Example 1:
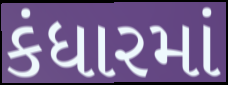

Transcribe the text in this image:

કંધારમાં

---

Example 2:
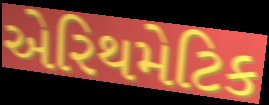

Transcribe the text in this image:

એરિથમેટિક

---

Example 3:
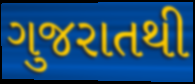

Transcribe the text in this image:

ગુજરાતથી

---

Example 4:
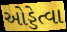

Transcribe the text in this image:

ઓડ્ડેત્વા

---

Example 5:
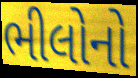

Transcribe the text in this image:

ભીલોનો